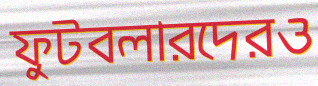
ফুটবলারদেরও